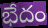
భేదం